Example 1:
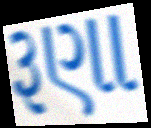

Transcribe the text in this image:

રૂણા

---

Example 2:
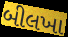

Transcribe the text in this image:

બીલખા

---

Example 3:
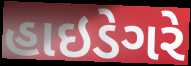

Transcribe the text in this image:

હાઇડેગરે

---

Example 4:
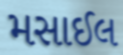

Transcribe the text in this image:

મસાઈલ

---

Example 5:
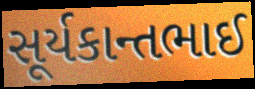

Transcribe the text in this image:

સૂર્યકાન્તભાઈ